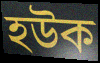
হউক